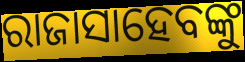
ରାଜାସାହେବଙ୍କୁ